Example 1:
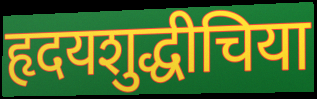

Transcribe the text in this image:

हृदयशुद्धीचिया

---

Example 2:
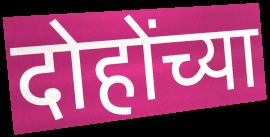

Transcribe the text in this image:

दोहोंच्या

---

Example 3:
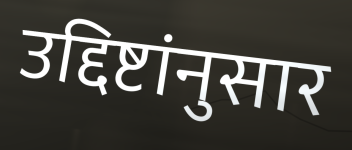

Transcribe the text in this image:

उद्दिष्टांनुसार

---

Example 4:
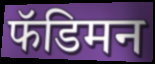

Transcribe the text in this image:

फॅडिमन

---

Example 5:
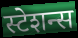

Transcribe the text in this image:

स्टेशन्स